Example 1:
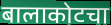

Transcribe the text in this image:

बालाकोटचा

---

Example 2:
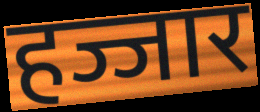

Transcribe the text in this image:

हज्जार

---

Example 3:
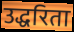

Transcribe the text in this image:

उद्धरिता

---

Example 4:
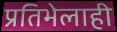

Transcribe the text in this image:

प्रतिभेलाही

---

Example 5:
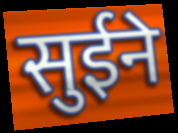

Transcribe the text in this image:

सुईने